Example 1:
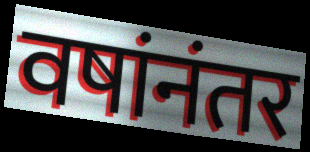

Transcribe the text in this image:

वषांनंतर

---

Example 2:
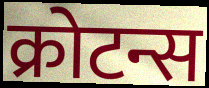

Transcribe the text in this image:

क्रोटन्स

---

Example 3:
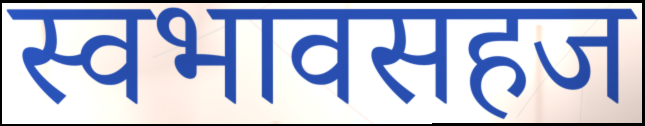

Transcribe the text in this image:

स्वभावसहज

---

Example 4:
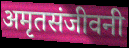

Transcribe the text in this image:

अमृतसंजीवनी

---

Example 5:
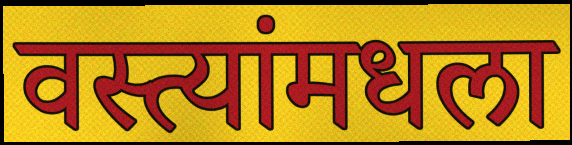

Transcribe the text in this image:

वस्त्यांमधला